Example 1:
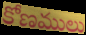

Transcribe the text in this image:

కోణములు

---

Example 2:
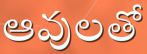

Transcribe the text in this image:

ఆవులతో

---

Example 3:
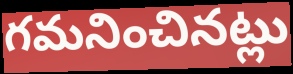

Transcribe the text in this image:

గమనించినట్లు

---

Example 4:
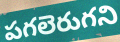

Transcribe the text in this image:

పగలెరుగని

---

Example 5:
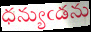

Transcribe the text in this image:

ధన్యుఁడను